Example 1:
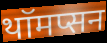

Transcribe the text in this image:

थॉमप्सन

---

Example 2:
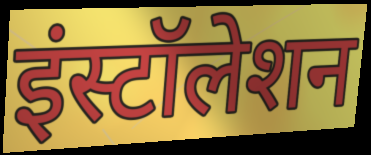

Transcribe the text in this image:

इंस्टॉलेशन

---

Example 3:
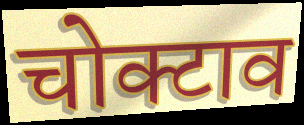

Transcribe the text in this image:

चोक्टाव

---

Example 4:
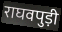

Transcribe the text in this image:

राघवपुड़ी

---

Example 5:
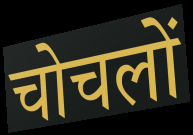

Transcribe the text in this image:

चोचलों